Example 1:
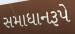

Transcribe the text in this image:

સમાધાનરૂપે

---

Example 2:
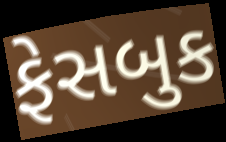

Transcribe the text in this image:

ફેસબુક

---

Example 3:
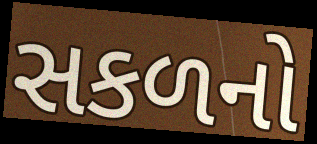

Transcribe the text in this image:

સકળનો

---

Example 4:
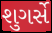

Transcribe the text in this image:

શુગર્સે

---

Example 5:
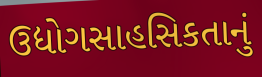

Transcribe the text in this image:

ઉદ્યોગસાહસિકતાનું